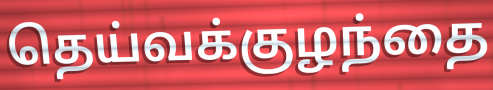
தெய்வக்குழந்தை